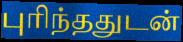
புரிந்ததுடன்